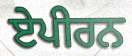
ਏਪੀਰਨ